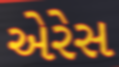
એરેસ